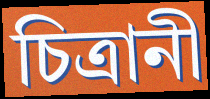
চিত্রানী